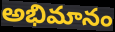
అభిమానం